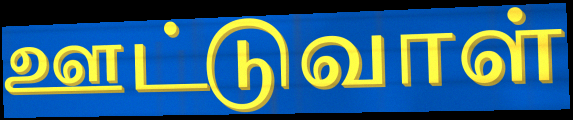
ஊட்டுவாள்